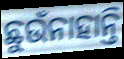
ଛୁଉଁନାହାନ୍ତି